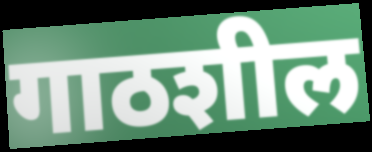
गाठशील